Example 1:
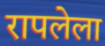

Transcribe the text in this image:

रापलेला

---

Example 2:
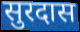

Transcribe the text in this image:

सुरदास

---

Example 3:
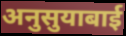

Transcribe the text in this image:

अनुसुयाबाई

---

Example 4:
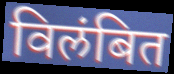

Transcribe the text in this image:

विलंबित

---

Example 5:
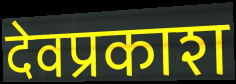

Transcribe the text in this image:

देवप्रकाश